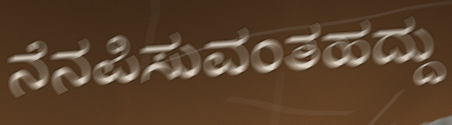
ನೆನಪಿಸುವಂತಹದ್ದು